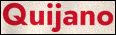
Quijano